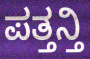
ಪತ್ತನ್ತಿ